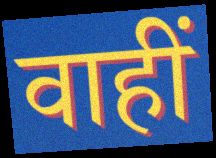
वाहीं